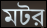
মটর